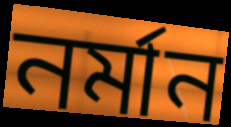
নর্মান